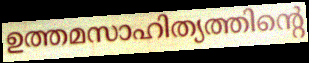
ഉത്തമസാഹിത്യത്തിന്റെ